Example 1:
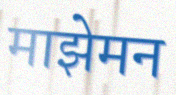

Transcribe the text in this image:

माझेमन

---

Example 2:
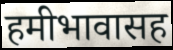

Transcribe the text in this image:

हमीभावासह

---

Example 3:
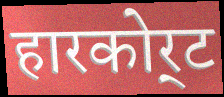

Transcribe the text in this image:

हारकोर्ट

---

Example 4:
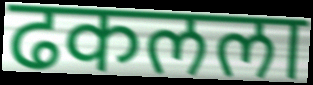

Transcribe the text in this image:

ढकलला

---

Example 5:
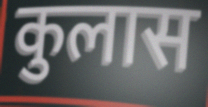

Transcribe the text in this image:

कुलास